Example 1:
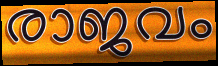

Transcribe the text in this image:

രാജവം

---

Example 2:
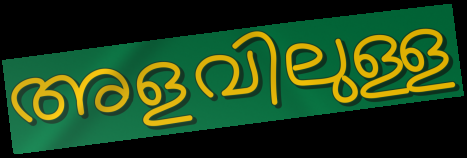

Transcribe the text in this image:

അളവിലുള്ള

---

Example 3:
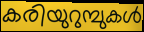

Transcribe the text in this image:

കരിയുറുമ്പുകൾ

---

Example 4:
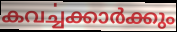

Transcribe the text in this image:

കവൎച്ചക്കാർക്കും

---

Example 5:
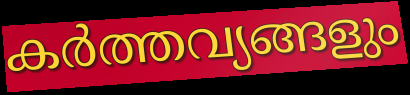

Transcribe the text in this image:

കർത്തവ്യങ്ങളും